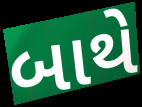
બાથે